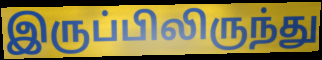
இருப்பிலிருந்து